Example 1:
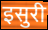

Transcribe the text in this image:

इसुरी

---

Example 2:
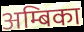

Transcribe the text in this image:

अम्बिका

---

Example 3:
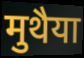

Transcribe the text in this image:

मुथैया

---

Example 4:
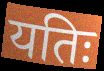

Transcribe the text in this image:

यतिः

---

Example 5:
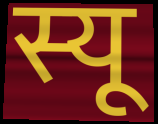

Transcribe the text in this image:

स्यू